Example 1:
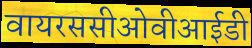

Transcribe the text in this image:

वायरससीओवीआईडी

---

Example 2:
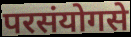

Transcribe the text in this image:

परसंयोगसे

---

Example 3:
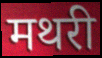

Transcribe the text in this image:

मथरी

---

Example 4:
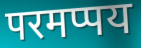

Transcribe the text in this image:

परमप्पय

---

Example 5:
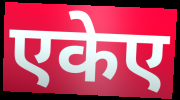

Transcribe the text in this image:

एकेए